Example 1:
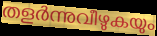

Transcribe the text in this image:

തളർന്നുവീഴുകയും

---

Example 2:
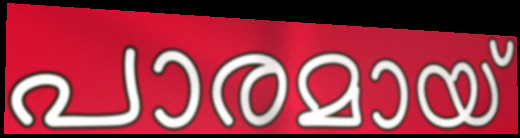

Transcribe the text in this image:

പാരമായ്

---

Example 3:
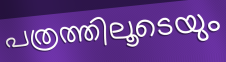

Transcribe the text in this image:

പത്രത്തിലൂടെയും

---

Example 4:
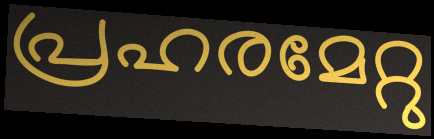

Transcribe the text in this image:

പ്രഹരമേറ്റു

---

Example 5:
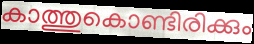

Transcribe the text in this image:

കാത്തുകൊണ്ടിരിക്കും